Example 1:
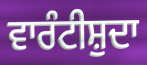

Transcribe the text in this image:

ਵਾਰੰਟੀਸ਼ੁਦਾ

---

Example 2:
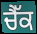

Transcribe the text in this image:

ਚੈੱਕ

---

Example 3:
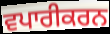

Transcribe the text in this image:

ਵਪਾਰੀਕਰਨ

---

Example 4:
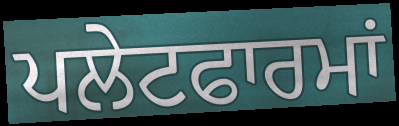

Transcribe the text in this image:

ਪਲੇਟਫਾਰਮਾਂ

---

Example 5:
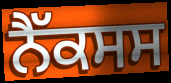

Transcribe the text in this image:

ਨੈੱਕਸਸ